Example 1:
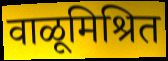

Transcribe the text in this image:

वाळूमिश्रित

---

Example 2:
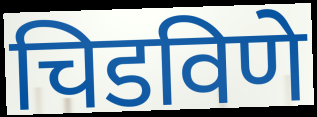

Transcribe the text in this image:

चिडविणे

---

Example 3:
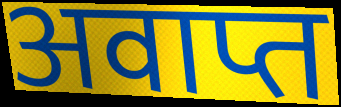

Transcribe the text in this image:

अवाप्त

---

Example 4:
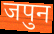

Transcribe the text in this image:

जपुन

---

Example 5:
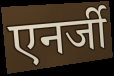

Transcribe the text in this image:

एनर्जी